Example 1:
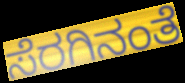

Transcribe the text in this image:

ಸೆರಗಿನಂತೆ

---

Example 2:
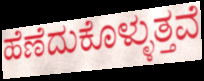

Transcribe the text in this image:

ಹೆಣೆದುಕೊಳ್ಳುತ್ತವೆ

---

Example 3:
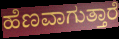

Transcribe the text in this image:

ಹೆಣವಾಗುತ್ತಾರೆ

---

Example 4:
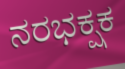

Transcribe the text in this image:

ನರಭಕ್ಷಕ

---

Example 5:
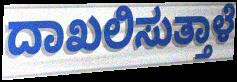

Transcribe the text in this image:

ದಾಖಲಿಸುತ್ತಾಳೆ